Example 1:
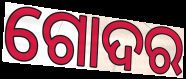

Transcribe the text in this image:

ଗୋଦର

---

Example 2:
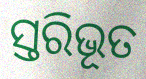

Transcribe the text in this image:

ସ୍ତରିଭୂତ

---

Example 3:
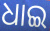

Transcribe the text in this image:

ଧାଇ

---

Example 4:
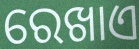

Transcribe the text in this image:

ରେଖାଏ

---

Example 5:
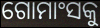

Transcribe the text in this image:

ଗୋମାଂସକୁ